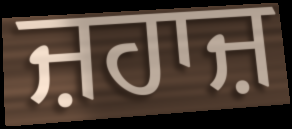
ਜ਼ਹਾਜ਼